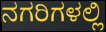
ನಗರಿಗಳಲ್ಲಿ